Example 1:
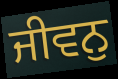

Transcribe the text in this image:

ਜੀਵਨੁ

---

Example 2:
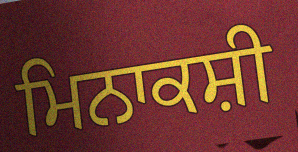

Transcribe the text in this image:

ਮਿਨਾਕਸ਼ੀ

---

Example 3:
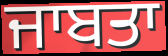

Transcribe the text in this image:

ਜਾਬਤਾ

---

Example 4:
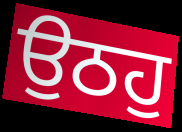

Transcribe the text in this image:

ਉਠਹੁ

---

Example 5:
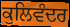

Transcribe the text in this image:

ਕੁਲਿਵੰਦਰ